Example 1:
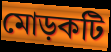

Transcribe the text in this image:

মোড়কটি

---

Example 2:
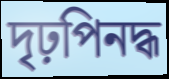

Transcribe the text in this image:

দৃঢ়পিনদ্ধ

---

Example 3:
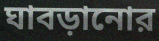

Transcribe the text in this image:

ঘাবড়ানোর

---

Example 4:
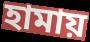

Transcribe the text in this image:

হামায়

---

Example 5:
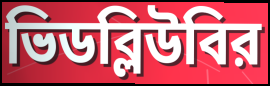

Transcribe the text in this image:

ভিডব্লিউবির